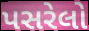
પસરેલો